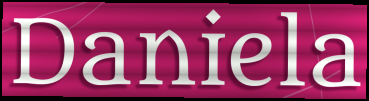
Daniela